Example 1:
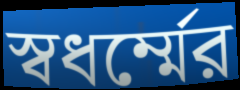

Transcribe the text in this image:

স্বধর্ম্মের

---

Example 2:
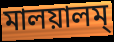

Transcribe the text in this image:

মালয়ালম্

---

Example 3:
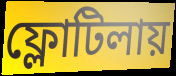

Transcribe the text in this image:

ফ্লোটিলায়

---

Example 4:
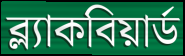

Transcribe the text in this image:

ব্ল্যাকবিয়ার্ড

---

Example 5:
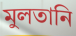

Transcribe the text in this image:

মুলতানি